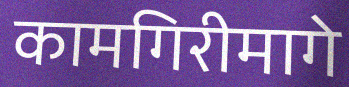
कामगिरीमागे